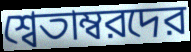
শ্বেতাম্বরদের